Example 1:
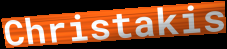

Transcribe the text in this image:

Christakis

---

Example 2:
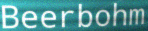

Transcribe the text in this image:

Beerbohm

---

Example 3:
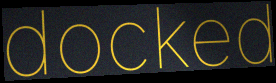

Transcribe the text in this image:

docked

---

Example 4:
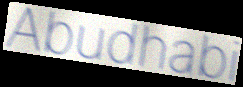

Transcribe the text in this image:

Abudhabi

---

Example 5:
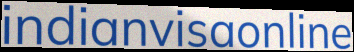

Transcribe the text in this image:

indianvisaonline